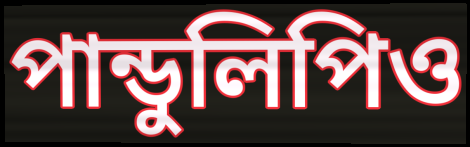
পান্ডুলিপিও